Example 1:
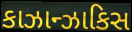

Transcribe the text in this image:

કાઝાન્ઝાકિસ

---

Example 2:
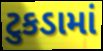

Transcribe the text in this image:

ટુકડામાં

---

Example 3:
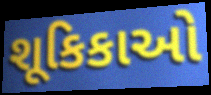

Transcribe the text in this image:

શૂકિકાઓ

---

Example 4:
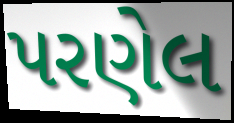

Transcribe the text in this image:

પરણેલ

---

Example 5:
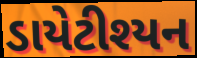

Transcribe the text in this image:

ડાયેટીશ્યન